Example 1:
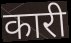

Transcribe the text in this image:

कारी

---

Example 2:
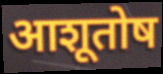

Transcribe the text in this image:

आशूतोष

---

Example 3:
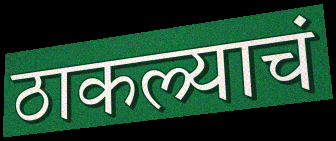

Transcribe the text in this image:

ठाकल्याचं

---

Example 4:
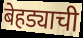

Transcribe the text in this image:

बेहड्याची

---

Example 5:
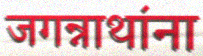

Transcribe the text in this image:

जगन्नाथांना